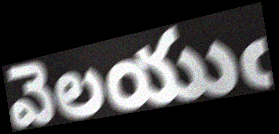
వెలయుఁ